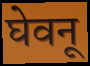
घेवनू